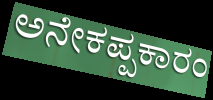
ಅನೇಕಪ್ಪಕಾರಂ